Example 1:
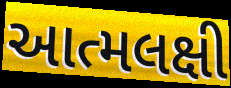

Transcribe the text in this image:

આત્મલક્ષી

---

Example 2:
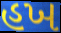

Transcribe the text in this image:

હખ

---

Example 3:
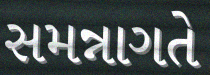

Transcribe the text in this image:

સમન્નાગતે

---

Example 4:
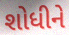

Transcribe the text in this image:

શોધીને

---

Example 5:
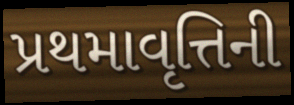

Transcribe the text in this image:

પ્રથમાવૃત્તિની